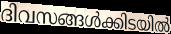
ദിവസങ്ങൾക്കിടയിൽ